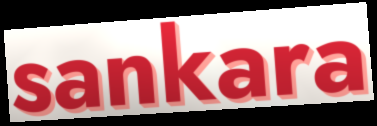
sankara